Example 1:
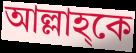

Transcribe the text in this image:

আল্লাহ্কে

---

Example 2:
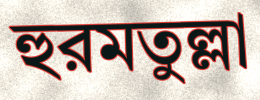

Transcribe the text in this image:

হুরমতুল্লা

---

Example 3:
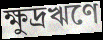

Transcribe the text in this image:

ক্ষুদ্রঋণে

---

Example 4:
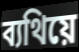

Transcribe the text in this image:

ব্যথিয়ে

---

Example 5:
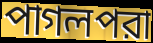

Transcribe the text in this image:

পাগলপরা